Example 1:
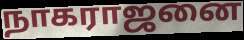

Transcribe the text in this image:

நாகராஜனை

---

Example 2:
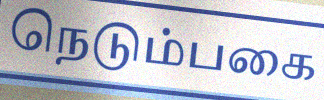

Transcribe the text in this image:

நெடும்பகை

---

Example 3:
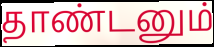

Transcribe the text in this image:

தாண்டனும்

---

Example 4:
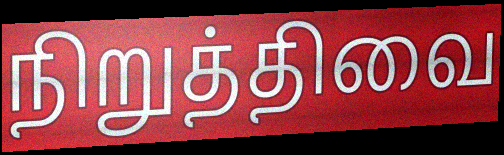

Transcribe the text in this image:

நிறுத்திவை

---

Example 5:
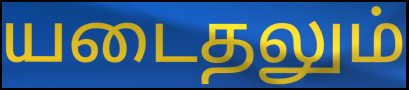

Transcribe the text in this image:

யடைதலும்